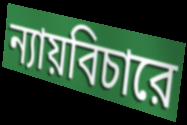
ন্যায়বিচারে